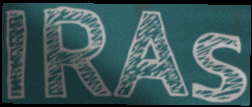
IRAs